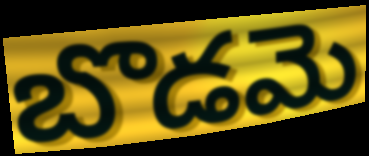
బొడమె